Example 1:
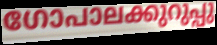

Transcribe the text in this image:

ഗോപാലക്കുറുപ്പു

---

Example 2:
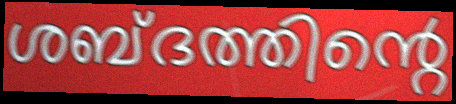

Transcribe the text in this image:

ശബ്ദത്തിന്റെ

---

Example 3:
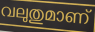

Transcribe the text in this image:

വലുതുമാണ്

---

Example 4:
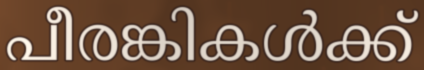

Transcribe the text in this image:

പീരങ്കികൾക്ക്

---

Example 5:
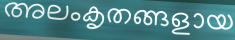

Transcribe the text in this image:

അലംകൃതങ്ങളായ